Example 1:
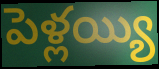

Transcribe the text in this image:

పెళ్లయ్యి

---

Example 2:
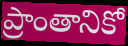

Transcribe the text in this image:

ప్రాంతానికో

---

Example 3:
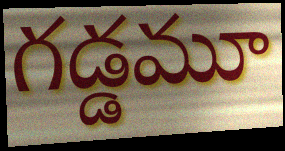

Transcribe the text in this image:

గడ్డమూ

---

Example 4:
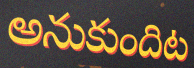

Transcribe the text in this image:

అనుకుందిట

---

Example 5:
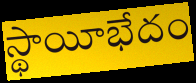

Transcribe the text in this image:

స్థాయీభేదం